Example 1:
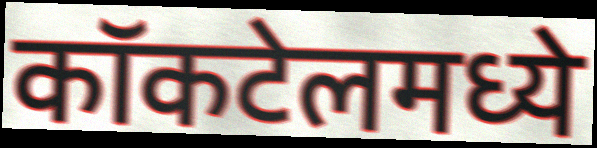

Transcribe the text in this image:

कॉकटेलमध्ये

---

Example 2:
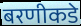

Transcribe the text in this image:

बरणीकडे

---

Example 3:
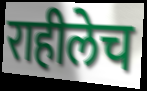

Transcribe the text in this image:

राहीलेच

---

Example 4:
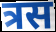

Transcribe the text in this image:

त्रस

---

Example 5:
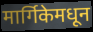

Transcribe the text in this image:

मार्गिकेमधून